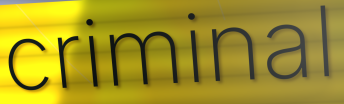
criminal